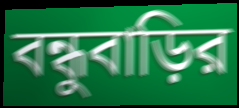
বন্ধুবাড়ির